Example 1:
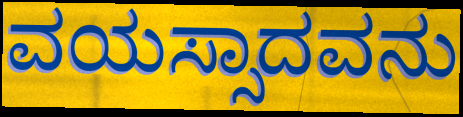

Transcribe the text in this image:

ವಯಸ್ಸಾದವನು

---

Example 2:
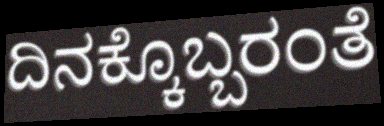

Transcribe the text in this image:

ದಿನಕ್ಕೊಬ್ಬರಂತೆ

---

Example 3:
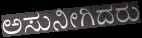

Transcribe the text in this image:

ಅಸುನೀಗಿದರು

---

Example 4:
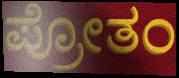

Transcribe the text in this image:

ಪ್ರೋತಂ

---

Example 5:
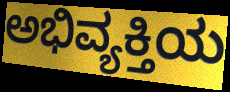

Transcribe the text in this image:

ಅಭಿವ್ಯಕ್ತಿಯ